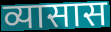
व्यासास